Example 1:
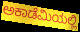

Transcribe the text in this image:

ಅಕಾಡೆಮಿಯಲ್ಲಿ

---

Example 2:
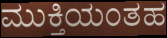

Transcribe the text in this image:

ಮುಕ್ತಿಯಂತಹ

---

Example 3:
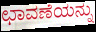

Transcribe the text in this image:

ಛಾವಣೆಯನ್ನು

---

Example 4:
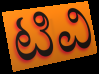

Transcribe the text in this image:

ಟಿವಿ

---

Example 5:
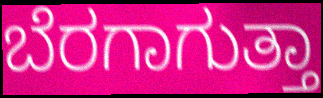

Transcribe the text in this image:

ಬೆರಗಾಗುತ್ತಾ